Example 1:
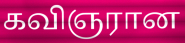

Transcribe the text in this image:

கவிஞரான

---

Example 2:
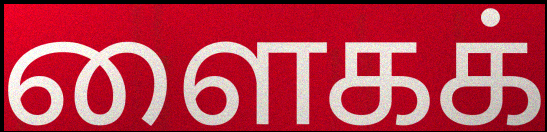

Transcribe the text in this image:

ளைகக்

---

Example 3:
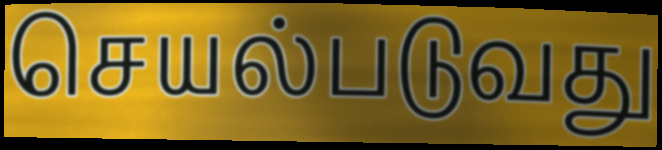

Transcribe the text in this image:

செயல்படுவது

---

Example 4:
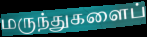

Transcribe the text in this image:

மருந்துகளைப்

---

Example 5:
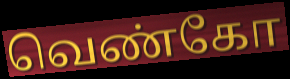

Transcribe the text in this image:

வெண்கோ